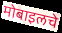
मोबाइलचे